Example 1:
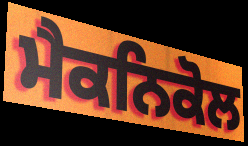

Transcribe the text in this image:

ਮੈਕਨਿਕੋਲ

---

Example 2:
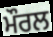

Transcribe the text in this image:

ਮੌਰਲ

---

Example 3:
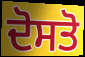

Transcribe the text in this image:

ਦੋਸਤੋ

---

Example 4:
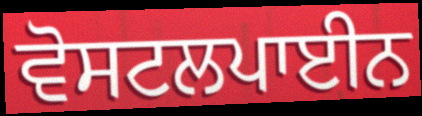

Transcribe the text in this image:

ਵੋਸਟਲਪਾਈਨ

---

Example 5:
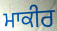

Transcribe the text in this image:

ਮਾਕੀਰ